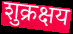
शुक्रक्षय